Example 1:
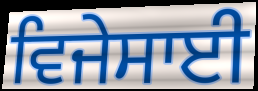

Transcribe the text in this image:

ਵਿਜੇਸਾਈ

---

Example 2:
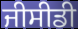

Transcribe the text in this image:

ਜੀਸੀਡੀ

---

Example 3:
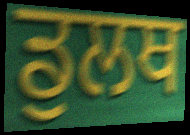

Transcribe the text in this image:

ਡੁਲਥ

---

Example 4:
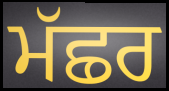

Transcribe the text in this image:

ਮੱਛਰ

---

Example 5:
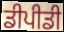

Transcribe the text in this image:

ਡੀਪੀਡੀ